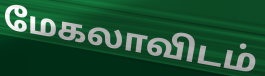
மேகலாவிடம்